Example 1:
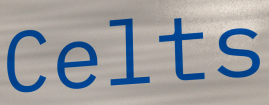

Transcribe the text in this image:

Celts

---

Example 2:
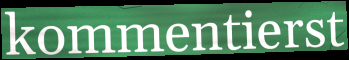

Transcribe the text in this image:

kommentierst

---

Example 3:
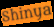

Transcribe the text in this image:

Shinya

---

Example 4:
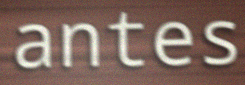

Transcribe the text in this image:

antes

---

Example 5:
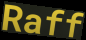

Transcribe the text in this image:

Raff